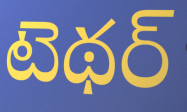
టెథర్